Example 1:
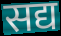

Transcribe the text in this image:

सद्य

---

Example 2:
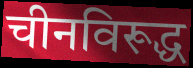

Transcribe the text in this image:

चीनविरूद्ध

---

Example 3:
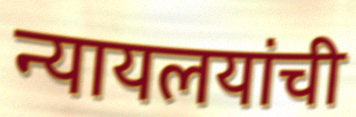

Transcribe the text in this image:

न्यायलयांची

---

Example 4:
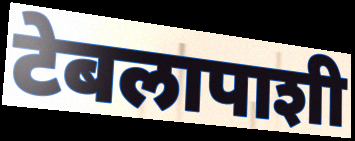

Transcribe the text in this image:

टेबलापाशी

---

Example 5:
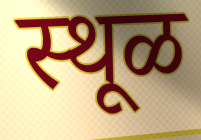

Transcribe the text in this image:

स्थूळ